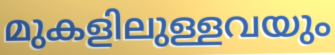
മുകളിലുള്ളവയും